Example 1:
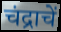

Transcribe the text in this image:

चंद्राचें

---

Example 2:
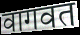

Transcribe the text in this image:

वागवत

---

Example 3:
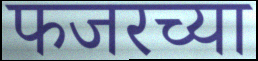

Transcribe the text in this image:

फजरच्या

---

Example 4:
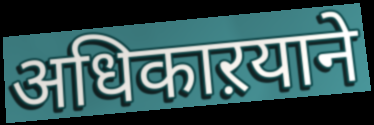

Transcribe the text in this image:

अधिकाऱयाने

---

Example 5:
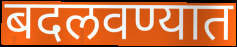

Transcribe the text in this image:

बदलवण्यात